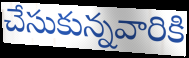
చేసుకున్నవారికి